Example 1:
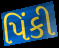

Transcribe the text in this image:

પિંકી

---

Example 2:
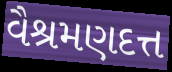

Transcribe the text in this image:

વૈશ્રમણદત્ત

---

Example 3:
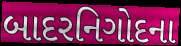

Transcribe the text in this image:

બાદરનિગોદના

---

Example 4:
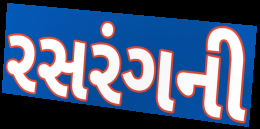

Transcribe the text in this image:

રસરંગની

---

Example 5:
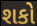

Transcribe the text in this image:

શકો